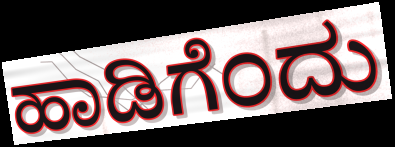
ಹಾಡಿಗೆಂದು